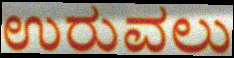
ಉರುವಲು